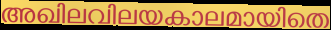
അഖിലവിലയകാലമായിതെ